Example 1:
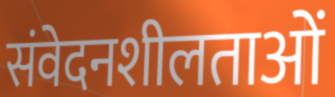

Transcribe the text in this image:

संवेदनशीलताओं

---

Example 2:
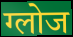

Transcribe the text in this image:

ग्लोज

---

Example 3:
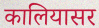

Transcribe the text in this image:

कालियासर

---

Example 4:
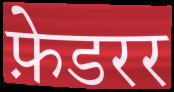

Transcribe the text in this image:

फ़ेडरर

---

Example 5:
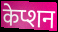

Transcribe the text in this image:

केप्शन